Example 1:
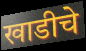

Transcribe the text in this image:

खाडीचे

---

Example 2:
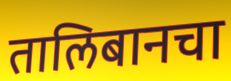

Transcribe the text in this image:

तालिबानचा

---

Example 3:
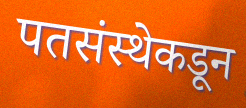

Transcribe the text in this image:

पतसंस्थेकडून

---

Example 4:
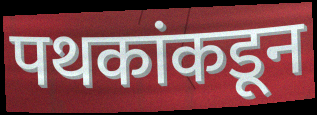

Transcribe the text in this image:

पथकांकडून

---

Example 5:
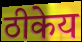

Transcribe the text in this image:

ठीकेय